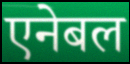
एनेबल